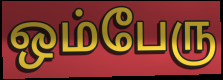
ஒம்பேரு